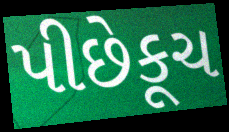
પીછેકૂચ